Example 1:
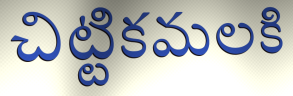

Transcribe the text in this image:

చిట్టికమలకి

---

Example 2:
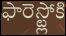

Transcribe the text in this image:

ఫారెస్ట్లోకి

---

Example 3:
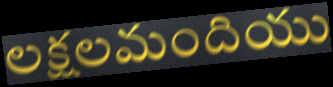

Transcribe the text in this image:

లక్షలమందియు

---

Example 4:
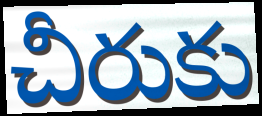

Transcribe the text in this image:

చీరుకు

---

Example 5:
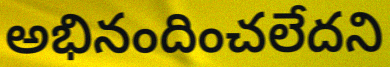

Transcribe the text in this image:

అభినందించలేదని